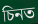
চিনত